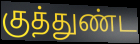
குத்துண்ட